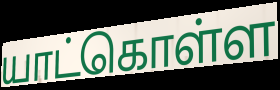
யாட்கொள்ள